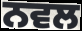
ਨਵਲ